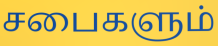
சபைகளும்